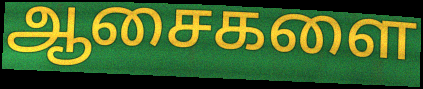
ஆசைகளை